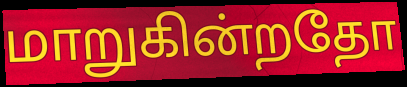
மாறுகின்றதோ